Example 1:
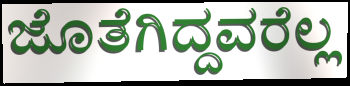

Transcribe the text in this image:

ಜೊತೆಗಿದ್ದವರೆಲ್ಲ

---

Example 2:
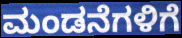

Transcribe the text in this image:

ಮಂಡನೆಗಳಿಗೆ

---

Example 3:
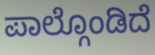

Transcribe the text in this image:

ಪಾಲ್ಗೊಂಡಿದೆ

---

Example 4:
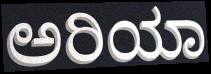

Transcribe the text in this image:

ಅರಿಯಾ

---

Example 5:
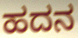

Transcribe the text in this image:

ಹದನ